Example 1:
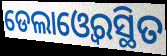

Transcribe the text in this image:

ଡେଲାଓ୍ବେରସ୍ଥିତ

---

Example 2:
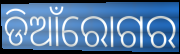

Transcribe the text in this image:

ଡିଆଁରୋଗର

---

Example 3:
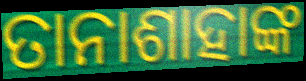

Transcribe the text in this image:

ତାନାଶାହାଙ୍କ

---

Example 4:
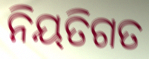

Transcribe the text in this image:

ନିୟତିଗତ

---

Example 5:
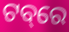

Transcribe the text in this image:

ଟବ୍‌ରେ